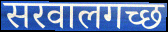
सरवालगच्छ